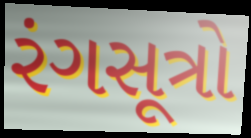
રંગસૂત્રો